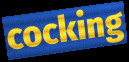
cocking